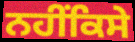
ਨਹੀਂਕਿਸੇ